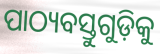
ପାଠ୍ୟବସ୍ତୁଗୁଡ଼ିକୁ